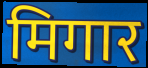
मिगार